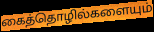
கைத்தொழில்களையும்